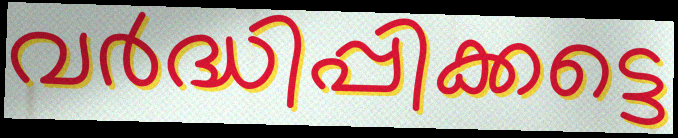
വർദ്ധിപ്പിക്കട്ടെ